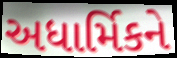
અધાર્મિકને